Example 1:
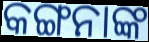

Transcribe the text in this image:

କଙ୍ଗନାଙ୍କ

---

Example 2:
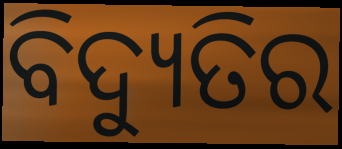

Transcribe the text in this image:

ବିଦ୍ୟୁତିର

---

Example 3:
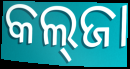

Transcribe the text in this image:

କଲ୍‌ଜା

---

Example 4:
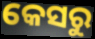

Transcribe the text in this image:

କେସରୁ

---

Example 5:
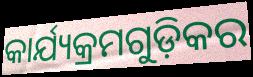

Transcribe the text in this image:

କାର୍ଯ୍ୟକ୍ରମଗୁଡ଼ିକର